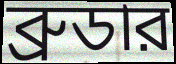
ব্রুডার